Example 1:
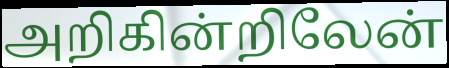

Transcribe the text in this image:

அறிகின்றிலேன்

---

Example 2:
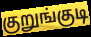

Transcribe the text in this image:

குறுங்குடி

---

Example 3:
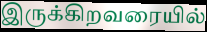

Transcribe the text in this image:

இருக்கிறவரையில்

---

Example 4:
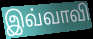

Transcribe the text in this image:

இவ்வாவி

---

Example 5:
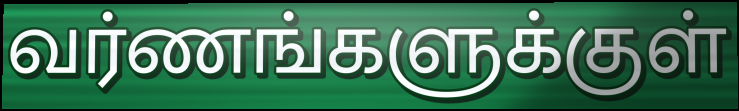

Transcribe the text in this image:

வர்ணங்களுக்குள்